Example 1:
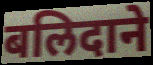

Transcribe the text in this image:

बलिदाने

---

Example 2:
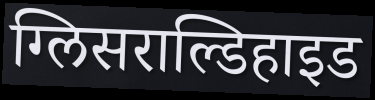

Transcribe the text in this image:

ग्लिसराल्डिहाइड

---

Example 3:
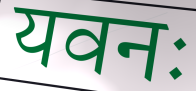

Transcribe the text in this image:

यवनः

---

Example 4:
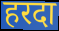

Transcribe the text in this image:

हरदा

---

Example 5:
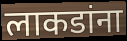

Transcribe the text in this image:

लाकडांना